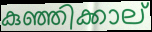
കുഞ്ഞിക്കാല്